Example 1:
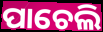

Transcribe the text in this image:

ପାଚେଲି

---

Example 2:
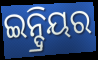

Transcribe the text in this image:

ଇନ୍ଦ୍ରିୟର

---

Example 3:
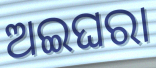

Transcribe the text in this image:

ଅଇଘରା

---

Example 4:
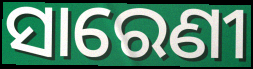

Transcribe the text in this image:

ସାରେଣୀ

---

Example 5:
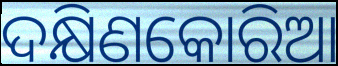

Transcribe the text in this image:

ଦକ୍ଷିଣକୋରିଆ